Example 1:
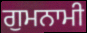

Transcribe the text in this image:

ਗੁਮਨਾਮੀ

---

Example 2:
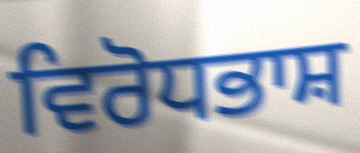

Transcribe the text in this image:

ਵਿਰੋਧਭਾਸ਼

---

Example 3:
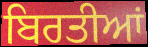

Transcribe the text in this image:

ਬਿਰਤੀਆਂ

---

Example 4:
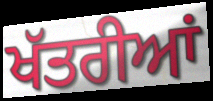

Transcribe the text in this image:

ਖੱਤਰੀਆਂ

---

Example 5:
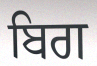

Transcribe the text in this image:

ਬਿਗ